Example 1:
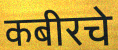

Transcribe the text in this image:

कबीरचे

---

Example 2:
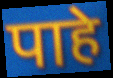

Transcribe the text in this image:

पाहे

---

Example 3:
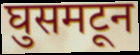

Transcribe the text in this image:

घुसमटून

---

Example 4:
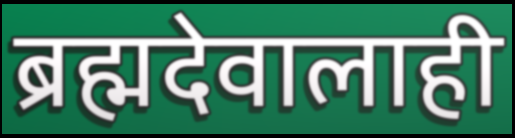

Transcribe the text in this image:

ब्रह्मदेवालाही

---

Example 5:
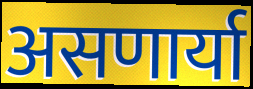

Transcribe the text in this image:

असणार्या